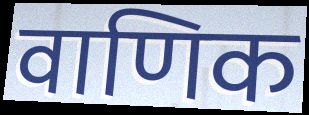
वाणिक